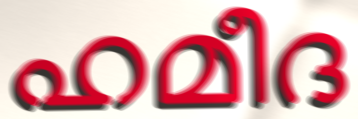
ഹമീദ